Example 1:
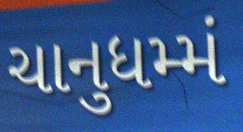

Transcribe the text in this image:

ચાનુધમ્મં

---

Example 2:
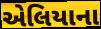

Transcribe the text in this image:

એલિયાના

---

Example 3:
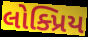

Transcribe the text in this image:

લોક્પ્રિય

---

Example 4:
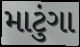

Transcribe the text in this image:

માટુંગા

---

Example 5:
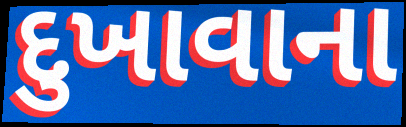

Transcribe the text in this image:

દુખાવાના